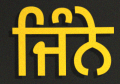
ਜਿੰਨੇ